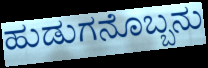
ಹುಡುಗನೊಬ್ಬನು